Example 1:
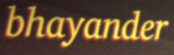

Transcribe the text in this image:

bhayander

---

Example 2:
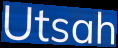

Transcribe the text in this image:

Utsah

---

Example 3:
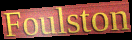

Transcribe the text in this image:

Foulston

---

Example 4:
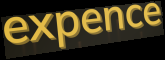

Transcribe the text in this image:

expence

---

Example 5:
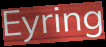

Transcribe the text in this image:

Eyring